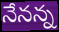
నేనన్న